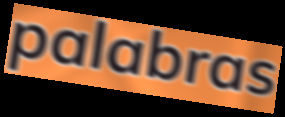
palabras